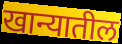
खान्यातील